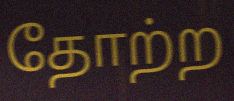
தோற்ற